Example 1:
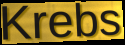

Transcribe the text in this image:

Krebs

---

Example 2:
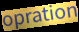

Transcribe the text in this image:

opration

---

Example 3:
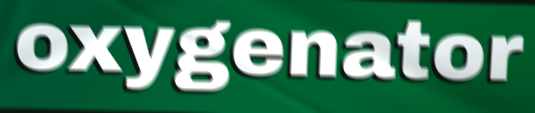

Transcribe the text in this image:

oxygenator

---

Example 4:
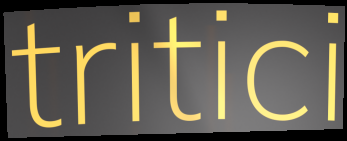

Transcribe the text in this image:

tritici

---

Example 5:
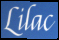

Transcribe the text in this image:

Lilac